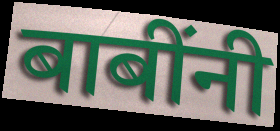
बाबींनी